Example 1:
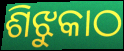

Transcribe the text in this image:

ଶିଝୁକାଠ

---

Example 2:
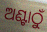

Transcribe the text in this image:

ଅଣ୍ଟାଠୁଁ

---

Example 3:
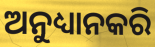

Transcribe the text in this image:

ଅନୁଧ୍ୟାନକରି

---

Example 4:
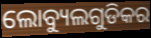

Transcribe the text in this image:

ଲୋବ୍ୟୁଲଗୁଡିକର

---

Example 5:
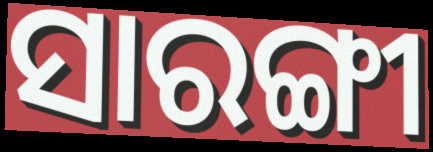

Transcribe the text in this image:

ସାରଙ୍ଗୀ